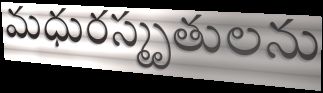
మధురస్మృతులను